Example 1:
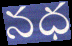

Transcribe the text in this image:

నధ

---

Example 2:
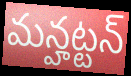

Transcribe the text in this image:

మన్హట్టన్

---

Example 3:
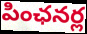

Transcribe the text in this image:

పింఛనర్ల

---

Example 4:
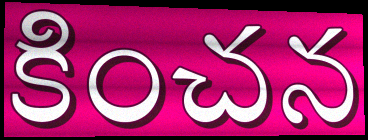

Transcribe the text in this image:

కించన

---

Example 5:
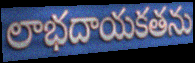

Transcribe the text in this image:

లాభదాయకతను